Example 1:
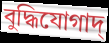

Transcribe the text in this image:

বুদ্ধিযোগাদ্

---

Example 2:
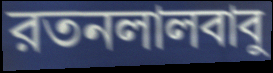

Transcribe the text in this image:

রতনলালবাবু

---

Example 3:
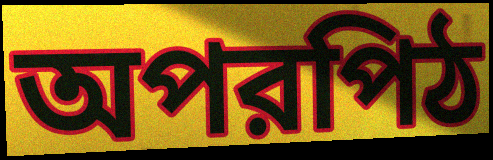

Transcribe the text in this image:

অপরপিঠ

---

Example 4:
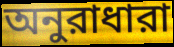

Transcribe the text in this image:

অনুরাধারা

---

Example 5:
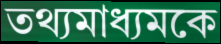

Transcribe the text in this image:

তথ্যমাধ্যমকে